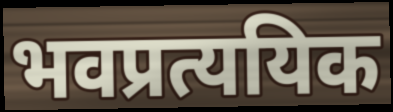
भवप्रत्ययिक